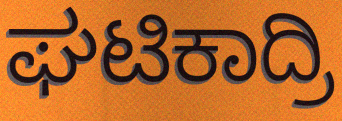
ಘಟಿಕಾದ್ರಿ